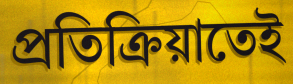
প্রতিক্রিয়াতেই